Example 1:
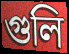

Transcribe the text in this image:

গুলি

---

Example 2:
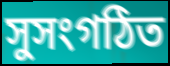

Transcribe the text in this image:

সুসংগঠিত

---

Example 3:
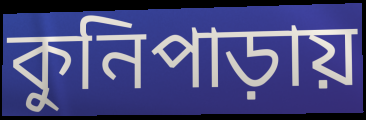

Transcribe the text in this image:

কুনিপাড়ায়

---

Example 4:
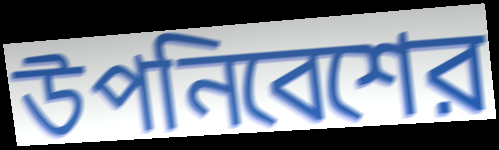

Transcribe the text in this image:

উপনিবেশের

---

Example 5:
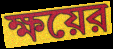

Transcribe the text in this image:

ক্ষয়ের